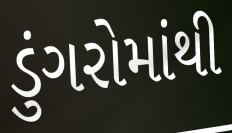
ડુંગરોમાંથી